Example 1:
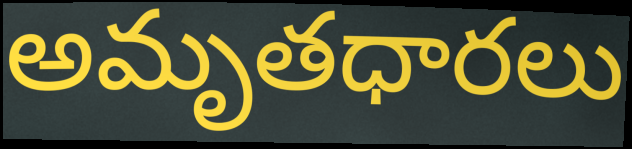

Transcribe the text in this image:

అమృతధారలు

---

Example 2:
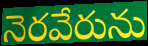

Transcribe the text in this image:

నెరవేరును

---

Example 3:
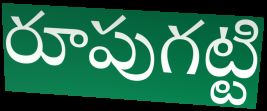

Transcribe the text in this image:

రూపుగట్టి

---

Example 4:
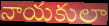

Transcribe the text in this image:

నాయకులా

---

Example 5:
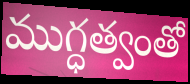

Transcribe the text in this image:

ముగ్ధత్వంతో